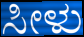
ಸೀಳು